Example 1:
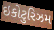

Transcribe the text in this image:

ઇકોટુરિઝમ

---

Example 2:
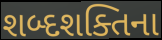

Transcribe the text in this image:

શબ્દશક્તિના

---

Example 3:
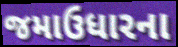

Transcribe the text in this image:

જમાઉધારના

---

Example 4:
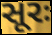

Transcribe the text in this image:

સૂરઃ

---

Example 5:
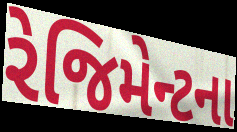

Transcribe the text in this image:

રેજિમેન્ટના